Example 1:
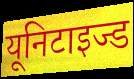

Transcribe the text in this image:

यूनिटाइज्ड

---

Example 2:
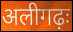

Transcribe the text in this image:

अलीगढ़ः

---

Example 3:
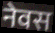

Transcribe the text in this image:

नेवस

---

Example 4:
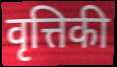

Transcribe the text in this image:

वृत्तिकी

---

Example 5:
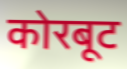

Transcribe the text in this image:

कोरबूट